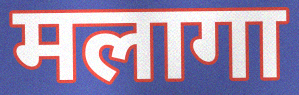
मलागा